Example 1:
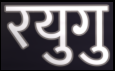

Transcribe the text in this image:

रयुगु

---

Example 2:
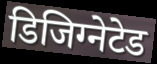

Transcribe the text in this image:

डिजिग्नेटेड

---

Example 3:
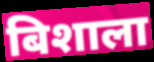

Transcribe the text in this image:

बिशाला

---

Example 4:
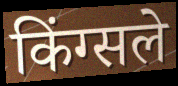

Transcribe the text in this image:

किंग्सले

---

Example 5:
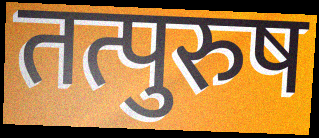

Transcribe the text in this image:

तत्पुरुष